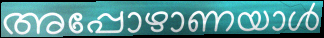
അപ്പോഴാണയാൾ